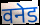
वनेड